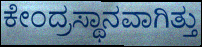
ಕೇಂದ್ರಸ್ಥಾನವಾಗಿತ್ತು